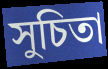
সুচিতা